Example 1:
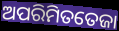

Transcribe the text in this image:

ଅପରିମିତତେଜା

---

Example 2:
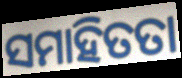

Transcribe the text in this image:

ସମାହିତତା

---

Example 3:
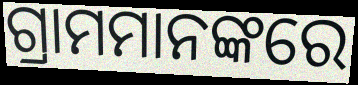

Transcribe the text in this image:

ଗ୍ରାମମାନଙ୍କରେ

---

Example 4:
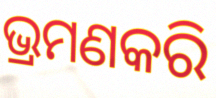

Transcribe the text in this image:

ଭ୍ରମଣକରି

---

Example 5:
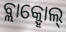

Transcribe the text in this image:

ବ୍ଲାକ୍ହୋଲ୍